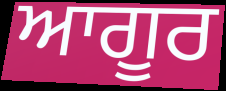
ਆਗੂਰ